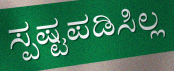
ಸ್ಪಷ್ಟಪಡಿಸಿಲ್ಲ